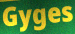
Gyges